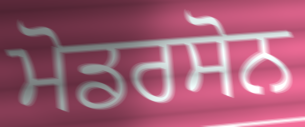
ਮੋਡਰਸੋਨ